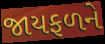
જાયફળને